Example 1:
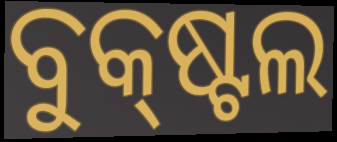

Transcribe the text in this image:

ବୁକ୍‌ଷ୍ଟଲ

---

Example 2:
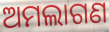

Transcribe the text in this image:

ଅମଲାଗଣ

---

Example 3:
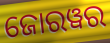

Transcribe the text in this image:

ଜୋରୱର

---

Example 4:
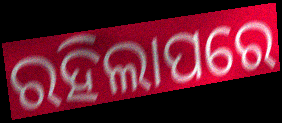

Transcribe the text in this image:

ରହିଲାପରେ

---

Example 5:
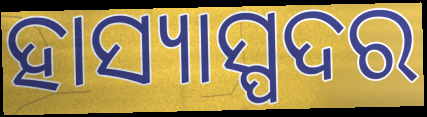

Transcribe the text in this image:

ହାସ୍ୟାସ୍ପଦର